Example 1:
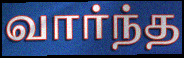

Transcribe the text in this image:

வார்ந்த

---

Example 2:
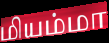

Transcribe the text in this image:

மியம்மா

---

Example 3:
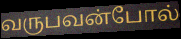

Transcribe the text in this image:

வருபவன்போல்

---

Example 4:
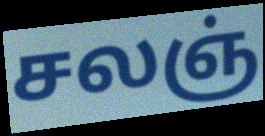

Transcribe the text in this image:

சலஞ்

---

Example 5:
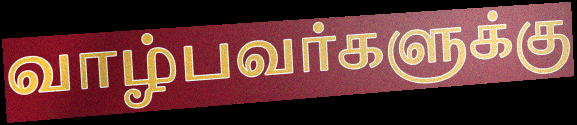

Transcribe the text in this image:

வாழ்பவர்களுக்கு